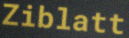
Ziblatt